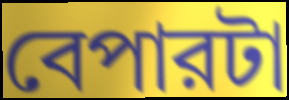
বেপারটা